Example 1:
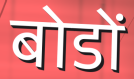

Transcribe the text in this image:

बोडों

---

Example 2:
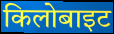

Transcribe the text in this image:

किलोबाइट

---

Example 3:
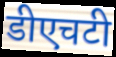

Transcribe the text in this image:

डीएचटी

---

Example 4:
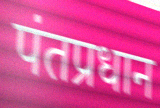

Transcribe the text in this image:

पंतप्रधान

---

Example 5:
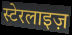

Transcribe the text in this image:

स्टेरलाइज़